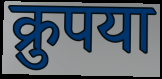
क्रुपया